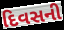
દિવસની